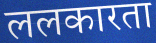
ललकारता